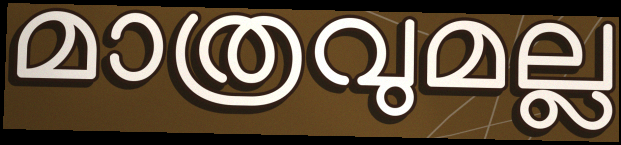
മാത്രവുമല്ല